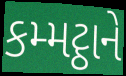
કમ્મટ્ઠાને